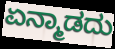
ಏನ್ಮಾಡದು